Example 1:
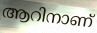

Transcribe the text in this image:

ആറിനാണ്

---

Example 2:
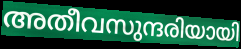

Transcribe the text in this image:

അതീവസുന്ദരിയായി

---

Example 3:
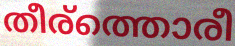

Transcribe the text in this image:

തീര്ത്തൊരീ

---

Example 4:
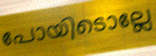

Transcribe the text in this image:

പോയിടൊല്ലേ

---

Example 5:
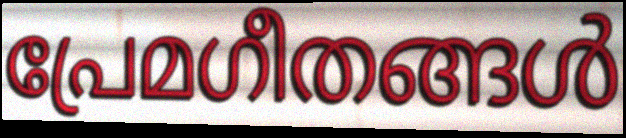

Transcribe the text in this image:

പ്രേമഗീതങ്ങൾ